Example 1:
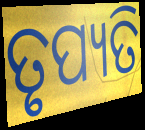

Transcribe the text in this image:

ତୃପ୍ୟତି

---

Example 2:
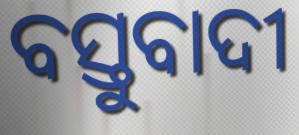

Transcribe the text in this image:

ବସ୍ତୁବାଦୀ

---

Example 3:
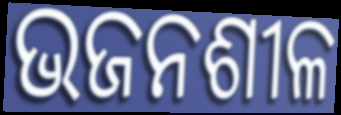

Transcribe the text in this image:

ଭଜନଶୀଳ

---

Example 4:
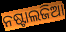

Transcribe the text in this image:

ନଷ୍ଟାଲଜିଆ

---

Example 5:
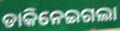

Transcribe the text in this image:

ଡାକିନେଇଗଲା